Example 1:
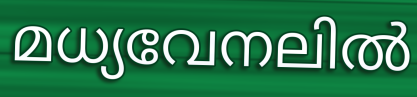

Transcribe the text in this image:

മധ്യവേനലിൽ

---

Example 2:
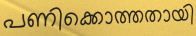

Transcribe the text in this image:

പണിക്കൊത്തതായി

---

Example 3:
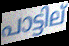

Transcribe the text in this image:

പാട്ടില്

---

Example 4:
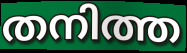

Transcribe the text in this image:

തനിത്ത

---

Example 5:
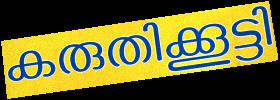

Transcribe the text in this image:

കരുതിക്കൂട്ടി